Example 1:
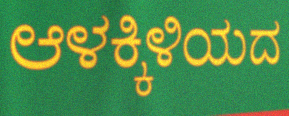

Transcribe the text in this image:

ಆಳಕ್ಕಿಳಿಯದ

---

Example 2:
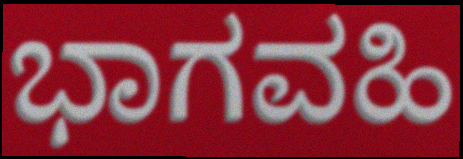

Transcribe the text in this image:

ಭಾಗವಹಿ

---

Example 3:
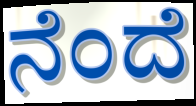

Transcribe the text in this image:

ನೆಂದೆ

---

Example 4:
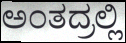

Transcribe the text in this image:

ಅಂತದ್ರಲ್ಲಿ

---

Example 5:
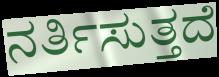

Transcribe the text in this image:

ನರ್ತಿಸುತ್ತದೆ